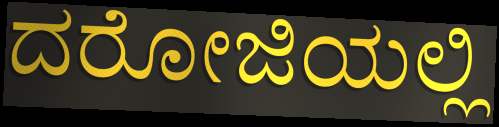
ದರೋಜಿಯಲ್ಲಿ